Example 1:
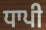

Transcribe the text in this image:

ਧਾਪੀ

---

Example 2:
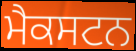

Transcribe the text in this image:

ਮੈਕਸਟਨ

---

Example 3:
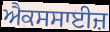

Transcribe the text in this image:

ਐਕਸਸਾਈਜ਼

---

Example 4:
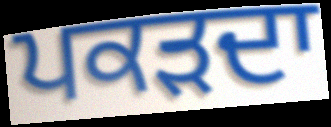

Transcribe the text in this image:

ਪਕੜਦਾ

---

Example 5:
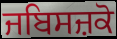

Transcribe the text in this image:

ਜਬਿਸਜ਼ਕੋ